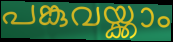
പങ്കുവയ്ക്കാം